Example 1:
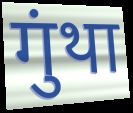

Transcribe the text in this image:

गुंथा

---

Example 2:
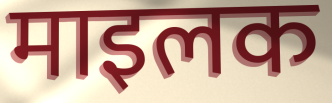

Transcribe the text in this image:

माइलक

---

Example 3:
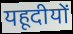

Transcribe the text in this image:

यहूदीयों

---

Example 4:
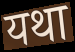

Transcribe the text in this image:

यथा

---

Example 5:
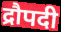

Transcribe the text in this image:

द्रौपदी